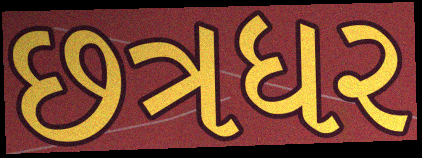
છત્રધર